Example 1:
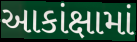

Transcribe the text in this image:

આકાંક્ષામાં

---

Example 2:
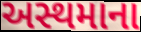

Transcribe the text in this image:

અસ્થમાના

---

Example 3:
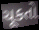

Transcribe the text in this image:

ચૂકતો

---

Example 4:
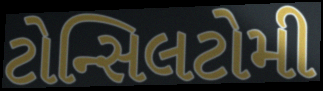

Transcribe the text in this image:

ટોન્સિલટોમી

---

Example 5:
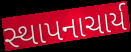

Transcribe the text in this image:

સ્થાપનાચાર્ય